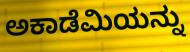
ಅಕಾಡೆಮಿಯನ್ನು